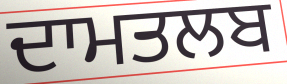
ਦਾਮਤਲਬ